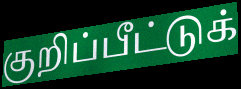
குறிப்பீட்டுக்